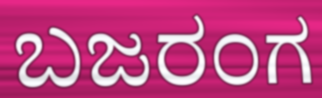
ಬಜರಂಗ